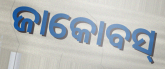
ଜାକୋବସ୍